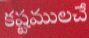
కష్టములచే